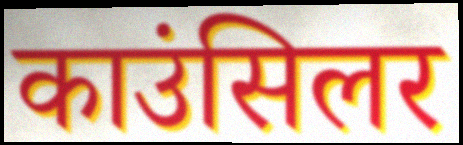
काउंसिलर